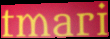
tmari